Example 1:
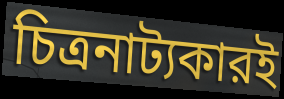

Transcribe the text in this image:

চিত্রনাট্যকারই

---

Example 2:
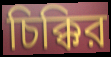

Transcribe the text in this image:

চিক্কির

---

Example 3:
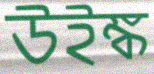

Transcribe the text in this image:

উইঙ্ক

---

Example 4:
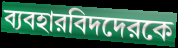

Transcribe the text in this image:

ব্যবহারবিদদেরকে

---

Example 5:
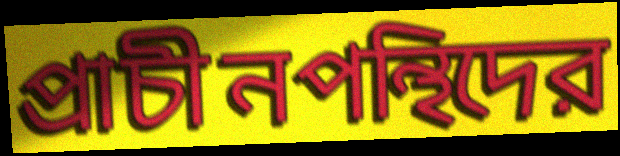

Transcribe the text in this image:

প্রাচীনপন্থিদের